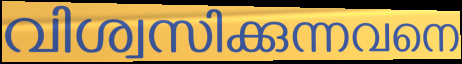
വിശ്വസിക്കുന്നവനെ